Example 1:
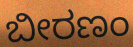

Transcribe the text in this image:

ಬೀರಣಂ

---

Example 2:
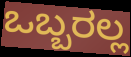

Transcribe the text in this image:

ಒಬ್ಬರಲ್ಲ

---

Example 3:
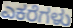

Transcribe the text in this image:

ಎಕರೆಗಳು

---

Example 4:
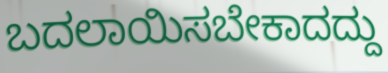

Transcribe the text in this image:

ಬದಲಾಯಿಸಬೇಕಾದದ್ದು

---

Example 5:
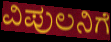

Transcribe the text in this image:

ವಿಪುಲನಿಗೆ